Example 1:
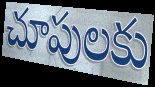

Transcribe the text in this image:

చూపులకు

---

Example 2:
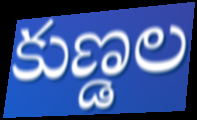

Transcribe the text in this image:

కుణ్డల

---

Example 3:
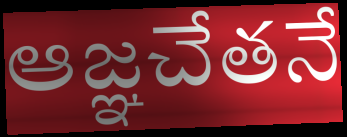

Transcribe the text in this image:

ఆజ్ఞచేతనే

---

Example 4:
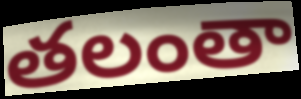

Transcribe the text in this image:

తలంతా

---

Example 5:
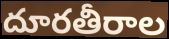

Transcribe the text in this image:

దూరతీరాల